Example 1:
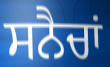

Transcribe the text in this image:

ਸਨੈਚਾਂ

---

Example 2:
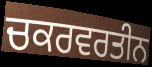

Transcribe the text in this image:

ਚਕਰਵਰਤੀਨ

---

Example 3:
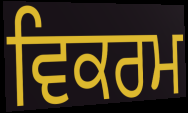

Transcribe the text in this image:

ਵਿਕਰਮ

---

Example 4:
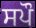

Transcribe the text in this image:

ਸਪੌ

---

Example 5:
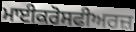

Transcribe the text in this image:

ਮਾਈਕਰੋਸਫੀਅਰਜ਼